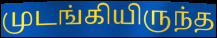
முடங்கியிருந்த